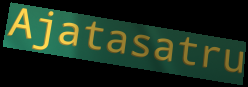
Ajatasatru